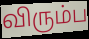
விரும்ப